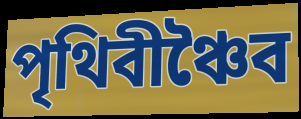
পৃথিবীঞ্চৈব